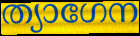
ത്യാഗേന